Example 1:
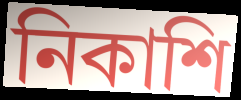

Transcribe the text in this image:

নিকাশি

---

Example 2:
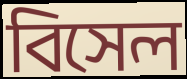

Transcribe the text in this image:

বিসেল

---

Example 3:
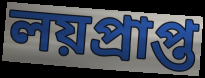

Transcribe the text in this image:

লয়প্রাপ্ত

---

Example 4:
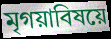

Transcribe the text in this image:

মৃগয়াবিষয়ে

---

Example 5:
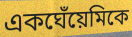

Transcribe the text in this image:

একঘেঁয়েমিকে